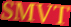
SMVT